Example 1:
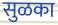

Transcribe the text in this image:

सुळका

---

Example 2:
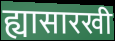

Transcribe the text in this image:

ह्यासारखी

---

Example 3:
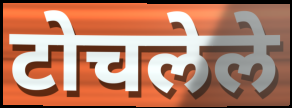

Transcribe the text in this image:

टोचलेले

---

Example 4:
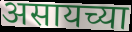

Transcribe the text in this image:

असायच्या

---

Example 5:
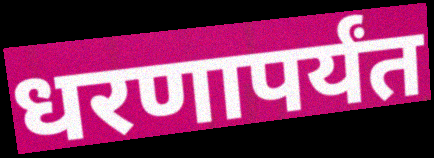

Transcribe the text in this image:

धरणापर्यंत